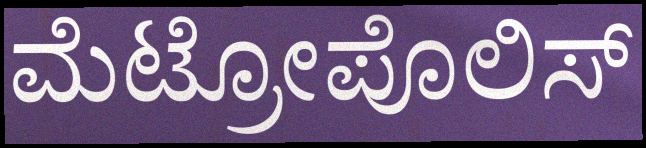
ಮೆಟ್ರೋಪೊಲಿಸ್